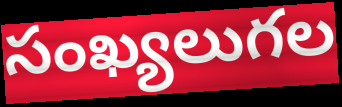
సంఖ్యలుగల